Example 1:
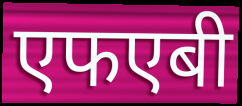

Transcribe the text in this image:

एफएबी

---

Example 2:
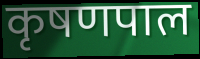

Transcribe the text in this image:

कृषणपाल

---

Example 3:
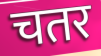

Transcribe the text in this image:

चतर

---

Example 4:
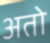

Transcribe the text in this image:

अतो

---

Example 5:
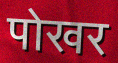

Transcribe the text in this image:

पोखर